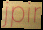
jpir